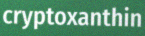
cryptoxanthin